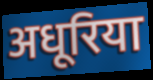
अधूरिया